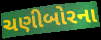
ચણીબોરના